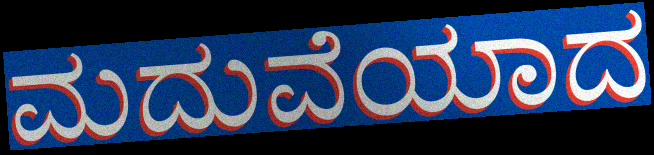
ಮದುವೆಯಾದ